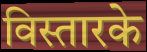
विस्तारके